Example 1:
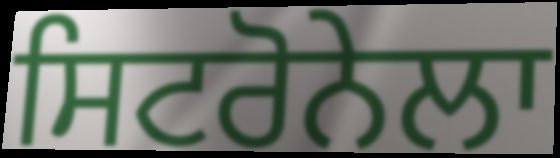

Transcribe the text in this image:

ਸਿਟਰੋਨੇਲਾ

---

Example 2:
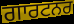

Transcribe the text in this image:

ਗਾਰਟਨਰ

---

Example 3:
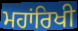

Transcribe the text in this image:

ਮਹਾਂਰਿਖੀ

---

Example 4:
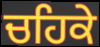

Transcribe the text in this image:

ਚਹਿਕੇ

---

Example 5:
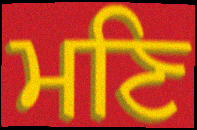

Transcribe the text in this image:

ਮਣਿ